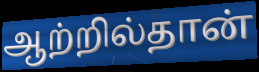
ஆற்றில்தான்